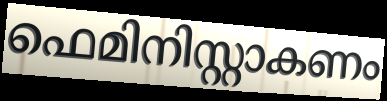
ഫെമിനിസ്റ്റാകണം